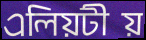
এলিয়টীয়